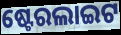
ଷ୍ଟେରଲାଇଟ